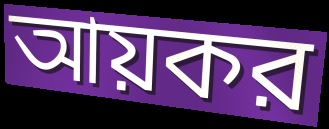
আয়কর